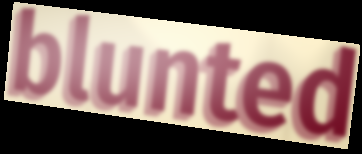
blunted